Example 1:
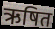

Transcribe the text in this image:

ऋषित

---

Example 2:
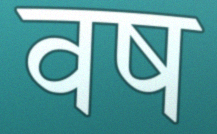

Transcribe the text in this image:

वष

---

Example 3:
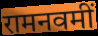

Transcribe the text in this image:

रामनवमीं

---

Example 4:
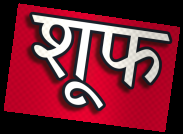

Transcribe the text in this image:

शूफ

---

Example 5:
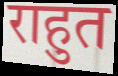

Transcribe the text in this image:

राहुत